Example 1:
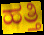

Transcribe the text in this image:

ಹತ್ತಿ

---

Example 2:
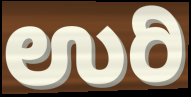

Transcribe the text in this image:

ಉರಿ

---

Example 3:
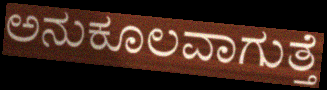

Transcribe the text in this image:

ಅನುಕೂಲವಾಗುತ್ತೆ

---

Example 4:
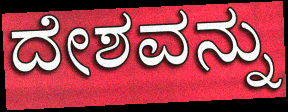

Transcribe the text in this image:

ದೇಶವನ್ನು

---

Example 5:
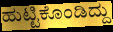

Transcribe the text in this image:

ಹುಟ್ಟಿಕೊಂಡಿದ್ದು